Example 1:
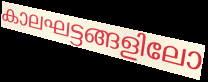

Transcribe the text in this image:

കാലഘട്ടങ്ങളിലോ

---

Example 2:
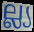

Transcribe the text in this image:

ല്ല്യ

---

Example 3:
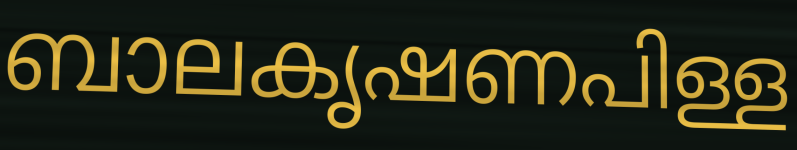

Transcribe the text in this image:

ബാലകൃഷണപിള്ള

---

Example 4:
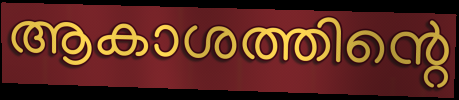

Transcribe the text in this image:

ആകാശത്തിന്റെ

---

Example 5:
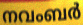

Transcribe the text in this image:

നവംബർ